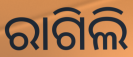
ରାଗିଲି